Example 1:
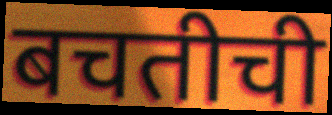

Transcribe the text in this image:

बचतीची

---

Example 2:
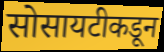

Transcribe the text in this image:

सोसायटीकडून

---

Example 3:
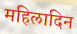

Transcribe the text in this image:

महिलादिन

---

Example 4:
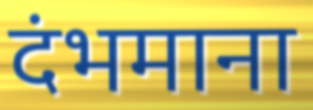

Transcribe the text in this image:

दंभमाना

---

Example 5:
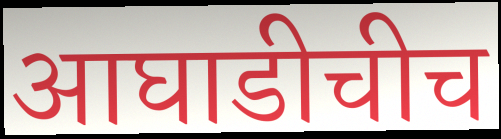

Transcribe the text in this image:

आघाडीचीच